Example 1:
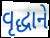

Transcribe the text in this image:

વૃદ્ધાને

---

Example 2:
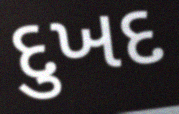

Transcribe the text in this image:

દુખદ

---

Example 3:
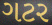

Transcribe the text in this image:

ગટર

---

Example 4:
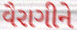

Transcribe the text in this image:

વૈરાગીને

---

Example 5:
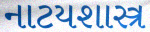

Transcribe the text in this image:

નાટયશાસ્ત્ર